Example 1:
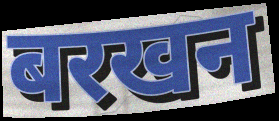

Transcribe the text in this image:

बरखन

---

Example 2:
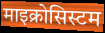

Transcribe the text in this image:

माइक्रोसिस्टम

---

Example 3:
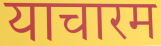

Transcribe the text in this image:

याचारम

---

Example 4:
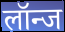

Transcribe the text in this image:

लॉन्ज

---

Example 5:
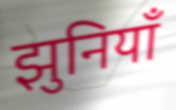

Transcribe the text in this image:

झुनियाँ